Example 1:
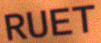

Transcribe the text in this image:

RUET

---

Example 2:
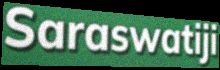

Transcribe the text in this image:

Saraswatiji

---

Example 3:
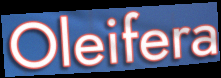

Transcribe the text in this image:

Oleifera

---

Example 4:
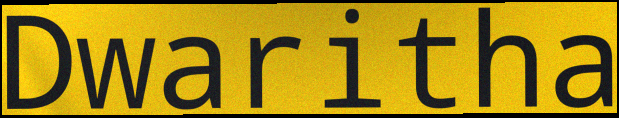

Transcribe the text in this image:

Dwaritha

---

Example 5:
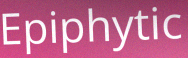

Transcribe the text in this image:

Epiphytic